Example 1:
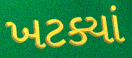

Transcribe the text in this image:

ખટક્યાં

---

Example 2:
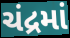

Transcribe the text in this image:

ચંદ્રમાં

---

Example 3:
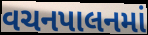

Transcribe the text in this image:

વચનપાલનમાં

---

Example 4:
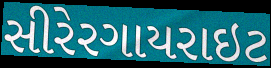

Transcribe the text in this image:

સીરેરગાયરાઇટ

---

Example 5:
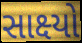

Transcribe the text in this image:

સાક્ષ્યો